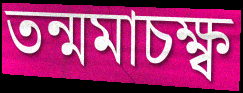
তন্মমাচক্ষ্ব